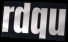
rdqu